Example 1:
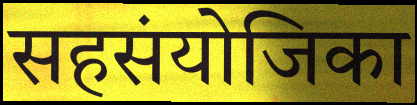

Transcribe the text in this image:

सहसंयोजिका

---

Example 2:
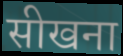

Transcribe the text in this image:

सीखना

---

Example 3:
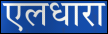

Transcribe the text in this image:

एलधारा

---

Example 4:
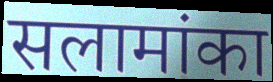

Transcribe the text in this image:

सलामांका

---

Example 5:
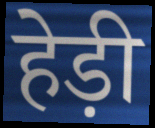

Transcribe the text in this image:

हेड़ी